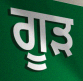
ਗੂੜ